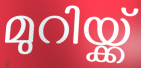
മുറിയ്ക്ക്